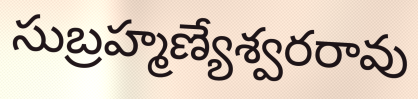
సుబ్రహ్మణ్యేశ్వరరావు